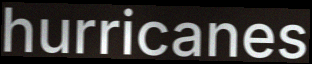
hurricanes